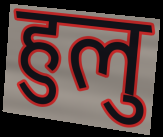
हुलु